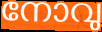
നോവു